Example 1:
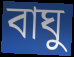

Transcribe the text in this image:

বাঘু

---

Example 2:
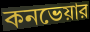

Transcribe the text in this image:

কনভেয়ার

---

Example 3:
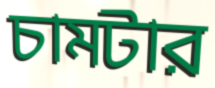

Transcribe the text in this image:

চামটার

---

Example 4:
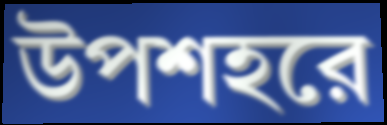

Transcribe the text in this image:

উপশহরে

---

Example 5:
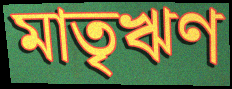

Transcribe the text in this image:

মাতৃঋণ